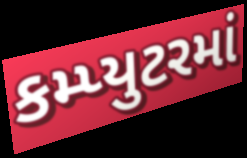
કમ્પ્યુટરમાં